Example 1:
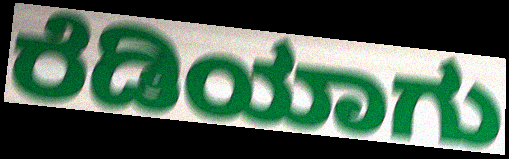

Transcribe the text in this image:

ರೆಡಿಯಾಗು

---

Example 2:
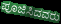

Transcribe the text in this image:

ಪೂಜಿಸಿದವರು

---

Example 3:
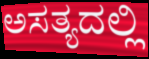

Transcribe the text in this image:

ಅಸತ್ಯದಲ್ಲಿ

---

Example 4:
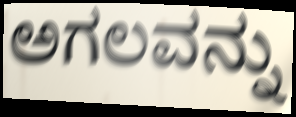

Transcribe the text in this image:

ಅಗಲವನ್ನು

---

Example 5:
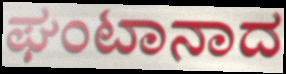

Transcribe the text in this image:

ಘಂಟಾನಾದ